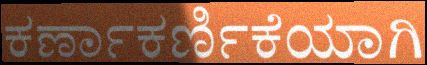
ಕರ್ಣಾಕರ್ಣಿಕೆಯಾಗಿ